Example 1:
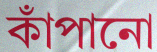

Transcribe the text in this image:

কাঁপানো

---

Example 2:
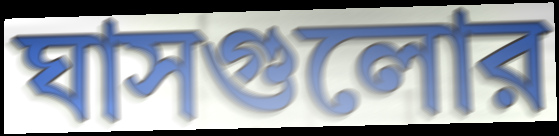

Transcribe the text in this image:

ঘাসগুলোর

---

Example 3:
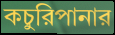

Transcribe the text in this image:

কচুরিপানার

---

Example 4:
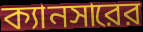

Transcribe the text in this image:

ক্যানসারের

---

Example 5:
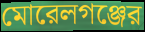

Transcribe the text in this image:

মোরেলগঞ্জের